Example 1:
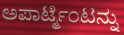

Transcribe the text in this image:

ಅಪಾರ್ಟ್ಮೆಂಟನ್ನು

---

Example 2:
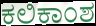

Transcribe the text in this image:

ಕಲಿಕಾಂಶ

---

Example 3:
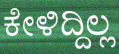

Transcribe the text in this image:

ಕೇಳಿದ್ದಿಲ್ಲ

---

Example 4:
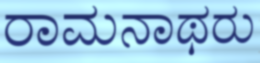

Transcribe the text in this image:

ರಾಮನಾಥರು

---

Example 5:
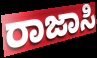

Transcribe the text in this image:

ರಾಜಾಸಿ